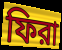
ফিরা